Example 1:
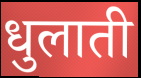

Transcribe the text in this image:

धुलाती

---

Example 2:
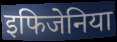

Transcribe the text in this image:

इफिजेनिया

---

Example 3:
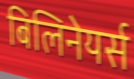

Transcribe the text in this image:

बिलिनेयर्स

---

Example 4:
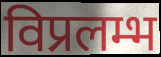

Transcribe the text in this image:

विप्रलम्भ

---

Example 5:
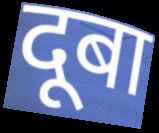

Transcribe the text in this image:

दूबा